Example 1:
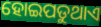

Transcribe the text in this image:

ହୋଇପଡୁଥାଏ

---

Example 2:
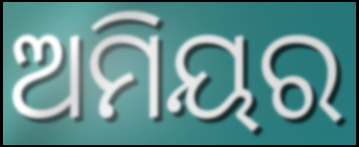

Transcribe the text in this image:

ଅମିୟର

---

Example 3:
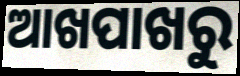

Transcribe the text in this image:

ଆଖପାଖରୁ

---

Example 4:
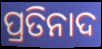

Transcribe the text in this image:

ପ୍ରତିନାଦ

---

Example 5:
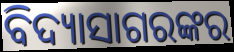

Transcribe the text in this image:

ବିଦ୍ୟାସାଗରଙ୍କର